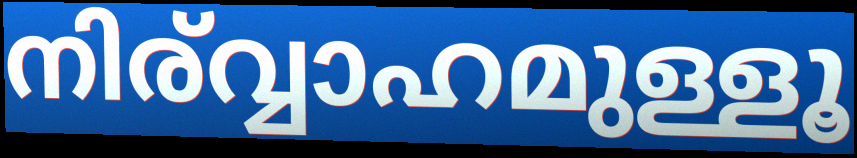
നിര്വ്വാഹമുള്ളൂ